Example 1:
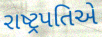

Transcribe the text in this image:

રાષ્ટ્રપતિએ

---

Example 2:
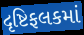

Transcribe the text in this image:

દૃષ્ટિફલકમાં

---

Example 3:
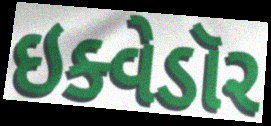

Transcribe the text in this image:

ઇક્વેડૉર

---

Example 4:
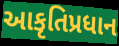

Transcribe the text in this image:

આકૃતિપ્રધાન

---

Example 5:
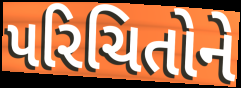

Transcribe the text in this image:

પરિચિતોને